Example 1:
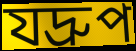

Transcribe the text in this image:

যদ্রুপ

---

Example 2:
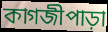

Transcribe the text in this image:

কাগজীপাড়া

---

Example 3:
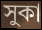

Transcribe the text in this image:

সুকা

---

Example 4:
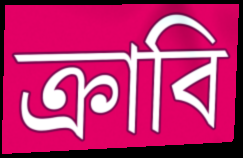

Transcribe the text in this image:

ক্রাবি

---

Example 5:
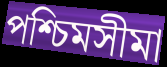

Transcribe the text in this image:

পশ্চিমসীমা